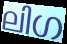
ലിഗ